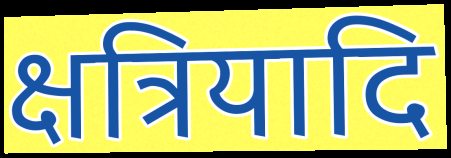
क्षत्रियादि